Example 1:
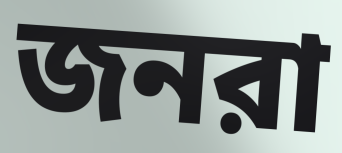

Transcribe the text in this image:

জনরা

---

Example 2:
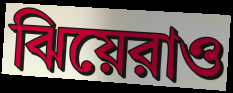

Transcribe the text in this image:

ঝিয়েরাও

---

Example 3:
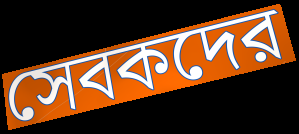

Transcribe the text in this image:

সেবকদের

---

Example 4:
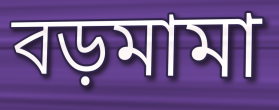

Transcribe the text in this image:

বড়মামা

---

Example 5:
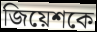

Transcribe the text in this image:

জিয়েশকে